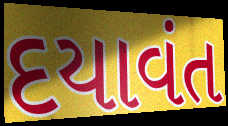
દયાવંત